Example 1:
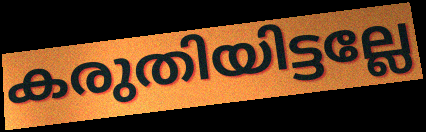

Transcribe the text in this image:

കരുതിയിട്ടല്ലേ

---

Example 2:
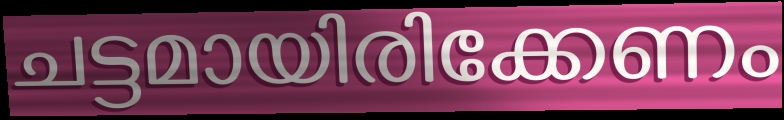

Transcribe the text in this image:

ചട്ടമായിരിക്കേണം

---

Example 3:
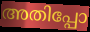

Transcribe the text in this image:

അതിപ്പോ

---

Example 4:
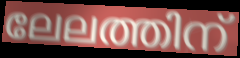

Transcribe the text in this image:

ലേലത്തിന്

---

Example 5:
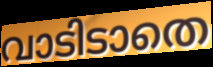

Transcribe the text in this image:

വാടിടാതെ